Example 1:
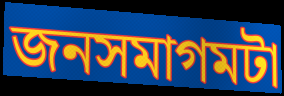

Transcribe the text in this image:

জনসমাগমটা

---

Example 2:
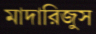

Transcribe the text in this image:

মাদারিজুস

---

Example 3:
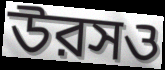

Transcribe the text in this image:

উরসও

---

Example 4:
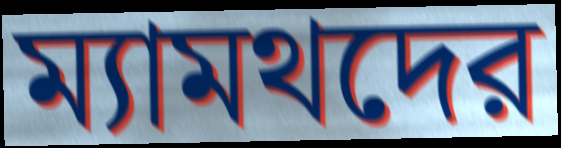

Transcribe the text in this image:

ম্যামথদের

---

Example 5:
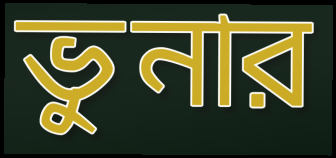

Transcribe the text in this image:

ভুনার